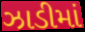
ઝાડીમાં